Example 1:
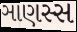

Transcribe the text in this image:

ઞાણસ્સ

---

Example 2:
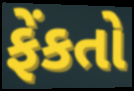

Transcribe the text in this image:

ફેંકતો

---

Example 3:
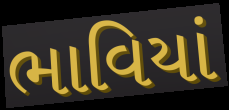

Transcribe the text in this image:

ભાવિયાં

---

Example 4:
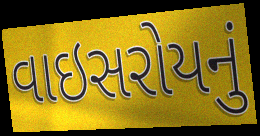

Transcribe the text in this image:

વાઇસરોયનું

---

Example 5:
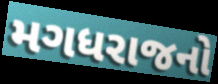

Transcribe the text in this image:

મગધરાજનો